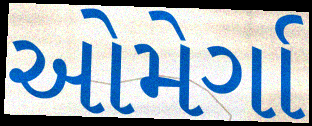
ઓમેર્ગા